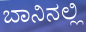
ಬಾನಿನಲ್ಲಿ